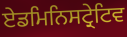
ਏਡਮਿਨਿਸਟ੍ਰੇਟਿਵ